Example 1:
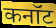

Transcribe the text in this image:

कनॉट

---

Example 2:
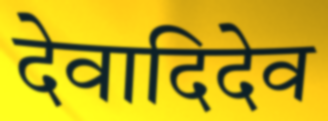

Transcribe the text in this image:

देवादिदेव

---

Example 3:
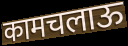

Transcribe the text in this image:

कामचलाऊ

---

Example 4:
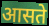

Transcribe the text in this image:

आसते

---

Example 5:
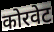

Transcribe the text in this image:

कोरवेट